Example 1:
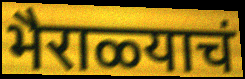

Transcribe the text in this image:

भैराळ्याचं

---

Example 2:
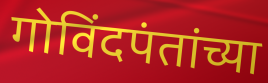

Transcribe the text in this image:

गोविंदपंतांच्या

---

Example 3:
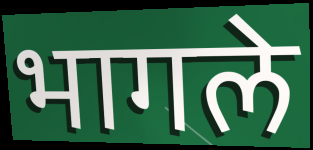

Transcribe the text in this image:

भागले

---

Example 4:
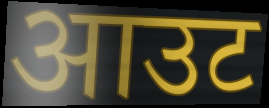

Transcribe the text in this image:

आउट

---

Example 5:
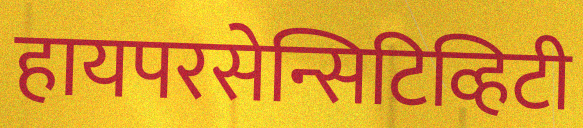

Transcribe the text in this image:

हायपरसेन्सिटिव्हिटी